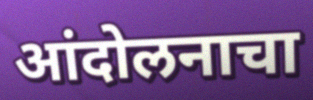
आंदोलनाचा